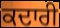
ਕਦਾਰੀ